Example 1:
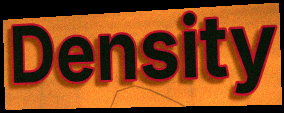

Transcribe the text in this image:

Density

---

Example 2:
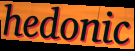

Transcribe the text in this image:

hedonic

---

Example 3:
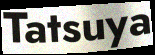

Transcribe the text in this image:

Tatsuya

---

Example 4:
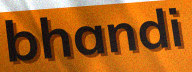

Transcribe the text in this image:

bhandi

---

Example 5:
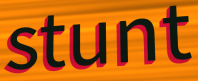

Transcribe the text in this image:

stunt